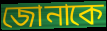
জোনাকে